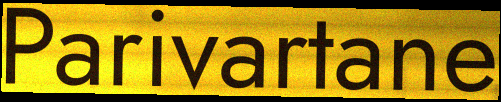
Parivartane